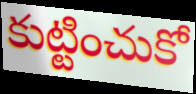
కుట్టించుకో